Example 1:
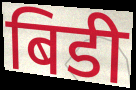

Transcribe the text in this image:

बिडी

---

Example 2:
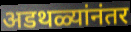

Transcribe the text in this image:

अडथळ्यांनंतर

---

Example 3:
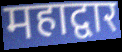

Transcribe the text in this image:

महाद्वार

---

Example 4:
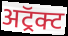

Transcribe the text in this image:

अट्रॅक्ट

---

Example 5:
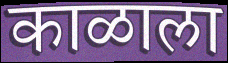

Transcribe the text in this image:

काळाला